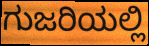
ಗುಜರಿಯಲ್ಲಿ